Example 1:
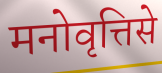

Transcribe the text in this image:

मनोवृत्तिसे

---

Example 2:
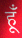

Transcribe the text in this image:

हूँं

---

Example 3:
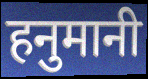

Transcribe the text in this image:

हनुमानी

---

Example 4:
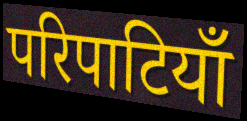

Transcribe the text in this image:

परिपाटियाँ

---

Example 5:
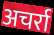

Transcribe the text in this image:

अचर्रा